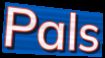
Pals